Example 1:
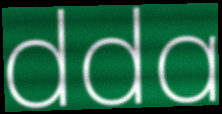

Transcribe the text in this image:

dda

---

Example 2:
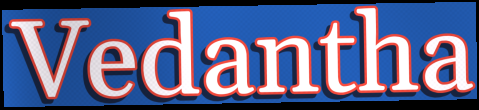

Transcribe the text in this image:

Vedantha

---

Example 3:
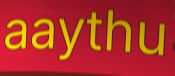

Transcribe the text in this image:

aaythu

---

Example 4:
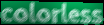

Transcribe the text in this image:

colorless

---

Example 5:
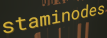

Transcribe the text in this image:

staminodes